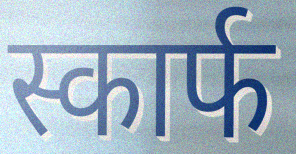
स्कार्फ